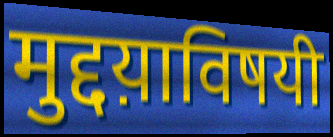
मुद्दय़ाविषयी